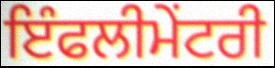
ਇੰਫਲੀਮੇਂਟਰੀ